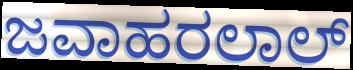
ಜವಾಹರಲಾಲ್